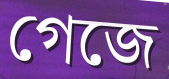
গেজে